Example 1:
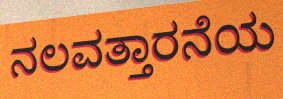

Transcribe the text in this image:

ನಲವತ್ತಾರನೆಯ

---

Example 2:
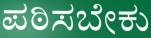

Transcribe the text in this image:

ಪಠಿಸಬೇಕು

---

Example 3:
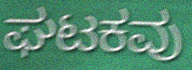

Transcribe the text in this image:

ಘಟಕವು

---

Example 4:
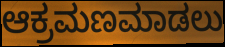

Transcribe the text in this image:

ಆಕ್ರಮಣಮಾಡಲು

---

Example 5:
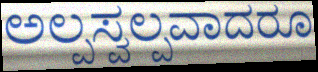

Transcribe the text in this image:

ಅಲ್ಪಸ್ವಲ್ಪವಾದರೂ